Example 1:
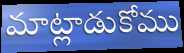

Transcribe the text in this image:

మాట్లాడుకోము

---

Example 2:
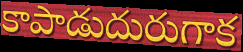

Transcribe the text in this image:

కాపాడుదురుగాక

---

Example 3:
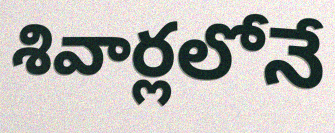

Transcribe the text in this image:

శివార్లలోనే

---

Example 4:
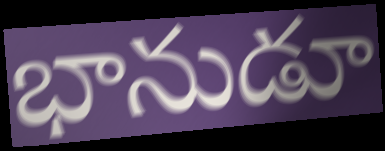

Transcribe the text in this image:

భానుడూ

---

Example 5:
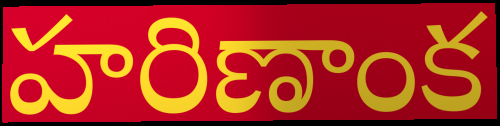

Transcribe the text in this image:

హరిణాంక